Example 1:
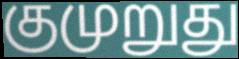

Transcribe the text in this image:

குமுறுது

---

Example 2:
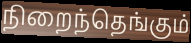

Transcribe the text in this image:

நிறைந்தெங்கும்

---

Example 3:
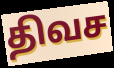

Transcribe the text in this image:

திவச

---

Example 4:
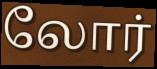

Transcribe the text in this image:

லோர்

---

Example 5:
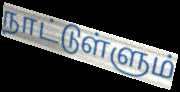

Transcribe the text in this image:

நாட்டுள்ளும்